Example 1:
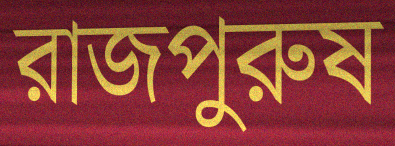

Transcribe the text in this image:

রাজপুরুষ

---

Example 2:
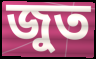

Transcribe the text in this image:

জুত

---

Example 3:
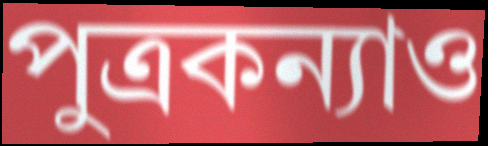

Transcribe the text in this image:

পুত্রকন্যাও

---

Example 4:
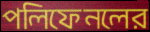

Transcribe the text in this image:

পলিফেনলের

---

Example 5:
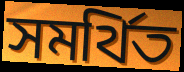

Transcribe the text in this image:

সমর্থিত